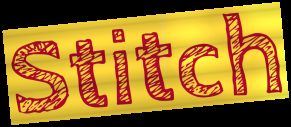
Stitch